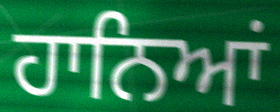
ਹਾਨਿਆਂ